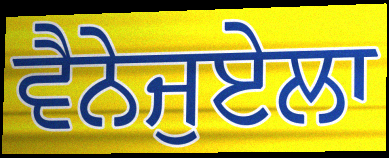
ਵੈਨੇਜੁਏਲਾ